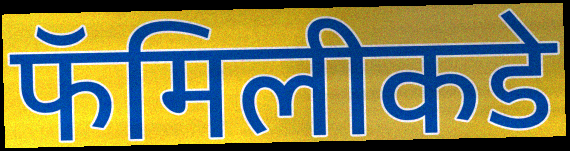
फॅमिलीकडे